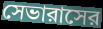
সেভারাসের